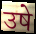
उषे